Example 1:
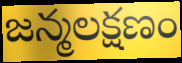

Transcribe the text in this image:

జన్మలక్షణం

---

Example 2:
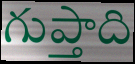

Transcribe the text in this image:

గుప్తాది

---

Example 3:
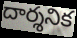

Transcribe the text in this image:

దార్శనిక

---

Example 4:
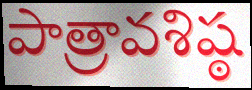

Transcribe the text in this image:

పాత్రావశిష్ఠ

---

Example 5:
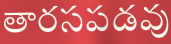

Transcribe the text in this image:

తారసపడవు